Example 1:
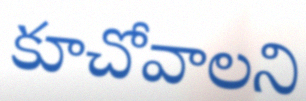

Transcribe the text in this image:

కూచోవాలని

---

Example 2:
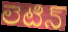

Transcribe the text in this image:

లెటిన్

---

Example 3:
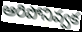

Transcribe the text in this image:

ఆరిపోనివ్వక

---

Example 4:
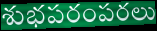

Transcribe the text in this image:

శుభపరంపరలు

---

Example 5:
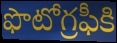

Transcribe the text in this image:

ఫొటోగ్రఫీకి